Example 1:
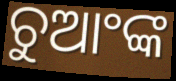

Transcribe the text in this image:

ଚୁଆଂଙ୍କ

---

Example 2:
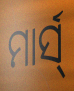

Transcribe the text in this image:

ମାର୍ସ୍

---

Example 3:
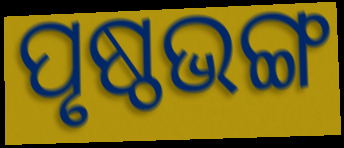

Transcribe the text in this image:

ପୃଷ୍ଠଭଙ୍ଗ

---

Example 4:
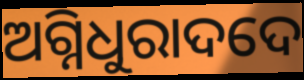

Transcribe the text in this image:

ଅଗ୍ନିଧୁରାଦଦେ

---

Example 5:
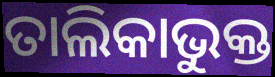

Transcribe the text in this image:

ତାଲିକାଭୁକ୍ତ